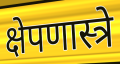
क्षेपणास्त्रे